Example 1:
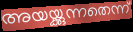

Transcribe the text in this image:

അയയ്ക്കുന്നതെന്ന്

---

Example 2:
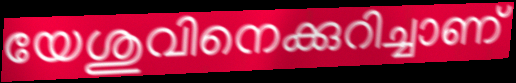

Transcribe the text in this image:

യേശുവിനെക്കുറിച്ചാണ്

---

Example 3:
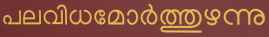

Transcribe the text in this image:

പലവിധമോർത്തുഴന്നു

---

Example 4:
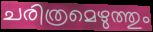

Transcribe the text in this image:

ചരിത്രമെഴുത്തും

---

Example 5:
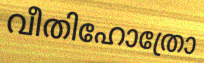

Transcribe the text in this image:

വീതിഹോത്രോ